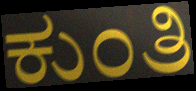
ಕುಂತಿ